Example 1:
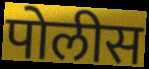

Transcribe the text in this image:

पोलीस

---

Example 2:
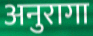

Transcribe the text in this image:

अनुरागा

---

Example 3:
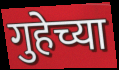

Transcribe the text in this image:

गुहेच्या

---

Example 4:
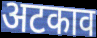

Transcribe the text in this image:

अटकाव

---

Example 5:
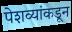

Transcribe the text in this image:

पेशव्यांकडून